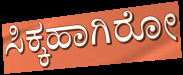
ಸಿಕ್ಕಹಾಗಿರೋ